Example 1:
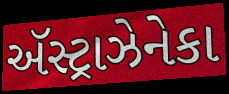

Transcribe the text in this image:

ઍસ્ટ્રાઝેનેકા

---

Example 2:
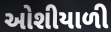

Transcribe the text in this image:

ઓશીયાળી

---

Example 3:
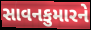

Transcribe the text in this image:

સાવનકુમારને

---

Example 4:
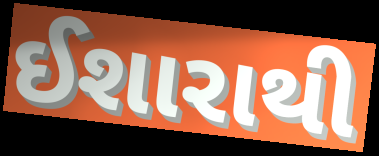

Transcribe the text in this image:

ઈશારાથી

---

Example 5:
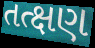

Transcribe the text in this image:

તત્ક્ષણ